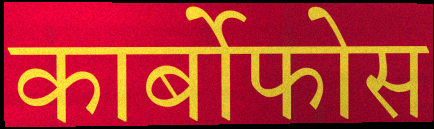
कार्बोफोस